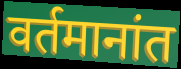
वर्तमानांत